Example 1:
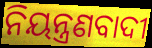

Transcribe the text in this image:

ନିୟନ୍ତ୍ରଣବାଦୀ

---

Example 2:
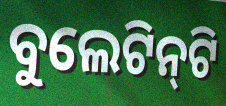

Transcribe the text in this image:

ବୁଲେଟିନ୍‍ଟି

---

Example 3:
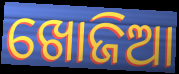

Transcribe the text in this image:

ଖୋଜିଆ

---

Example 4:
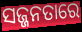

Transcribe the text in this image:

ସଜ୍ଜନତାରେ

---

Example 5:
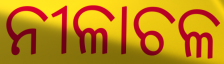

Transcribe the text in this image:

ନୀଳାଚଳ